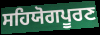
ਸਹਿਯੋਗਪੂਰਣ